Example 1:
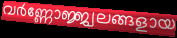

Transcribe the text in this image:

വർണ്ണോജ്ജ്വലങ്ങളായ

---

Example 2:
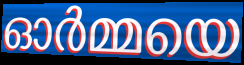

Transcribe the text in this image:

ഓർമ്മയെ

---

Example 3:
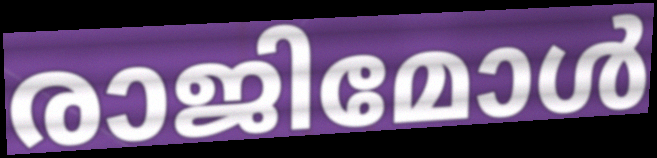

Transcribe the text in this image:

രാജിമോൾ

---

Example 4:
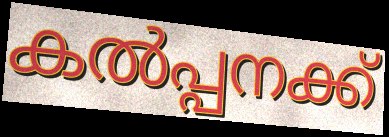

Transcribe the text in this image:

കൽപ്പനക്ക്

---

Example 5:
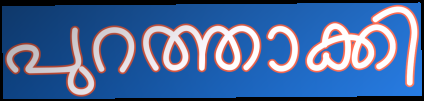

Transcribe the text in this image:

പുറത്താക്കി